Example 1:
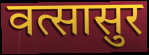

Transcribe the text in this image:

वत्सासुर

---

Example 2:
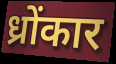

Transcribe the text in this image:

ध्रोंकार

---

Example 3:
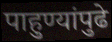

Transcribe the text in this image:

पाहुण्यांपुढे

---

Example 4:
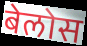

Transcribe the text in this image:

बेलोस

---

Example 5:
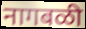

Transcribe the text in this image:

नागबळी